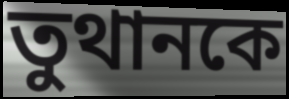
তুথানকে